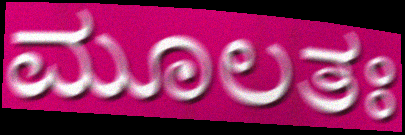
ಮೂಲತಃ